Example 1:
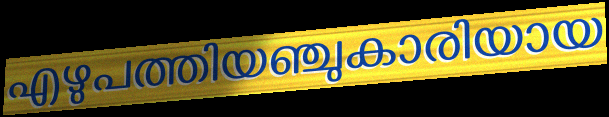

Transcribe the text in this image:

എഴുപത്തിയഞ്ചുകാരിയായ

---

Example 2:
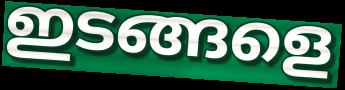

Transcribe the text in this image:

ഇടങ്ങളെ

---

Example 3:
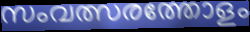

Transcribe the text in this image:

സംവത്സരത്തോളം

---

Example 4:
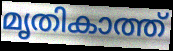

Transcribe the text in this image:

മൃതികാത്ത്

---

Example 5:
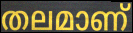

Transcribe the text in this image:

തലമാണ്